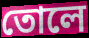
তোলে